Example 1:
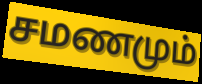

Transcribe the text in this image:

சமணமும்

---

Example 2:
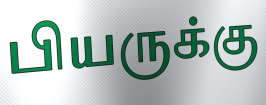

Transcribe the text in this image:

பியருக்கு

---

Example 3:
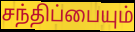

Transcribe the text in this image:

சந்திப்பையும்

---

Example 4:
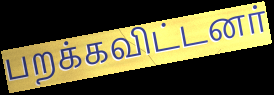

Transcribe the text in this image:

பறக்கவிட்டனர்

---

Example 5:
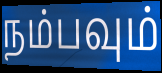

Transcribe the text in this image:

நம்பவும்